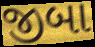
જીબા